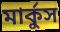
মার্কুস